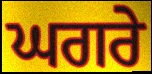
ਘਗਰੇ